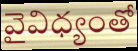
వైవిధ్యంతో